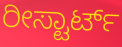
ರೀಸ್ಟಾರ್ಟ್